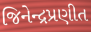
જિનેન્દ્રપ્રણીત